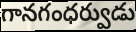
గానగంధర్వుడు